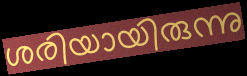
ശരിയായിരുന്നു